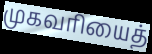
முகவரியைத்